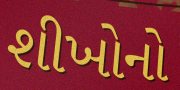
શીખોનો